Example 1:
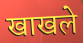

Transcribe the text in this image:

खाखले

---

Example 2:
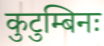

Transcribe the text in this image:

कुटुम्बिनः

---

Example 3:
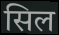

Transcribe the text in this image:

सिल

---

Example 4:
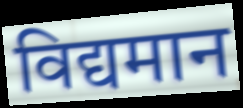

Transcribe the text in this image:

विद्यमान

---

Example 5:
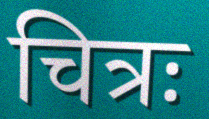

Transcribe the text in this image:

चित्रः